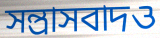
সন্ত্রাসবাদও